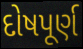
દોષપૂર્ણ